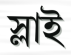
স্লাই